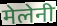
मेलेनी